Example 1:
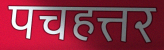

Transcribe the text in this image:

पचहत्तर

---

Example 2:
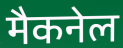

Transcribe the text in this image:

मैकनेल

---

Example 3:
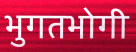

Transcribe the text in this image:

भुगतभोगी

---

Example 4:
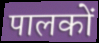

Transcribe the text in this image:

पालकों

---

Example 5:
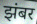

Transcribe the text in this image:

झंबर